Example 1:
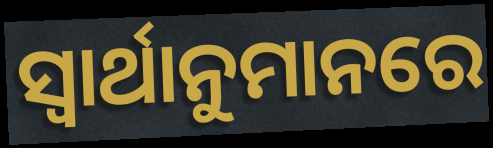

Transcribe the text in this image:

ସ୍ୱାର୍ଥାନୁମାନରେ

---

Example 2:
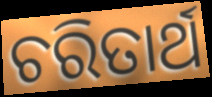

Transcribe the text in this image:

ଚରିତାର୍ଥ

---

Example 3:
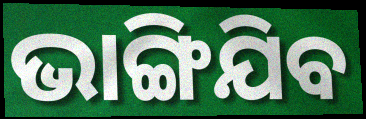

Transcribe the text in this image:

ଭାଙ୍ଗିଯିବ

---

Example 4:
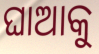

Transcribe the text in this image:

ଘାଆକୁ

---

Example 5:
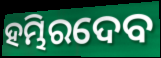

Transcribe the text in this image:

ହମ୍ଭିରଦେବ